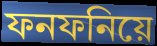
ফনফনিয়ে